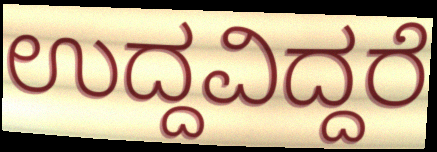
ಉದ್ದವಿದ್ದರೆ